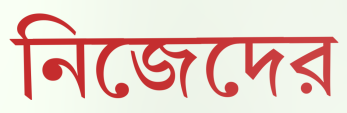
নিজেদের